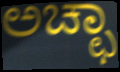
ಅಚ್ಛಾ